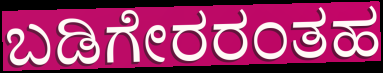
ಬಡಿಗೇರರಂತಹ